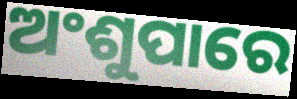
ଅଂଶୁପାରେ